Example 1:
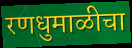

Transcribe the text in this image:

रणधुमाळीचा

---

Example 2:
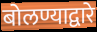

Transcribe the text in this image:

बोलण्याद्वारे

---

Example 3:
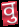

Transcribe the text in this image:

वु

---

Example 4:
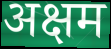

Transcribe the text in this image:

अक्षम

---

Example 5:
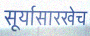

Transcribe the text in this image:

सूर्यासारखेच